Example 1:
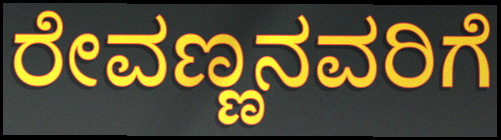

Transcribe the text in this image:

ರೇವಣ್ಣನವರಿಗೆ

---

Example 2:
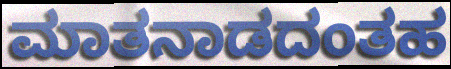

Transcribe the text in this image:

ಮಾತನಾಡದಂತಹ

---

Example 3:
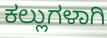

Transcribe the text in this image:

ಕಲ್ಲುಗಳಾಗಿ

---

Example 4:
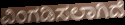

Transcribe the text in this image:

ವಿಂಗಡಿಸಲಾಗಿದೆ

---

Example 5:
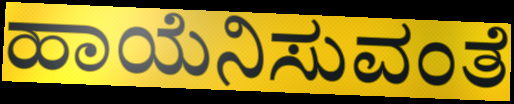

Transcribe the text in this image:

ಹಾಯೆನಿಸುವಂತೆ